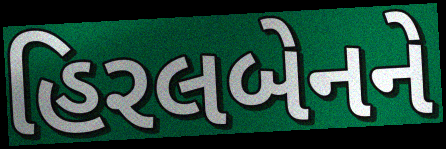
હિરલબેનને